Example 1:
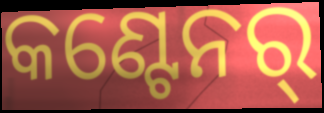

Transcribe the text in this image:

କଣ୍ଟେନର୍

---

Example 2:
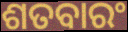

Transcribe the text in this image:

ଶତବାରଂ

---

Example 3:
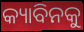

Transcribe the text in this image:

କ୍ୟାବିନକୁ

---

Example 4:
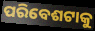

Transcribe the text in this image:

ପରିବେଶଟାକୁ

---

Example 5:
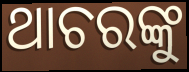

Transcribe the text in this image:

ଥାଚରଙ୍କୁ